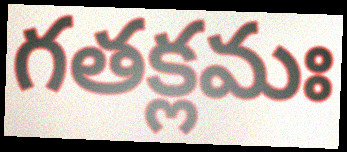
గతక్లమః